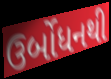
ઉર્બોધનથી